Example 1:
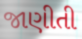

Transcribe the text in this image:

જાણીતી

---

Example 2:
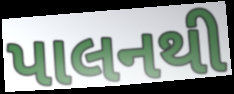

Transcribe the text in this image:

પાલનથી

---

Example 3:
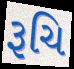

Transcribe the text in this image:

રૂચિ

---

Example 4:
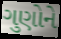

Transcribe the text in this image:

ગુણોને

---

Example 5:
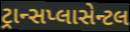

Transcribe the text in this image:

ટ્રાન્સપ્લાસેન્ટલ